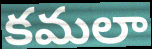
కమలా